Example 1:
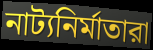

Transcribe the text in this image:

নাট্যনির্মাতারা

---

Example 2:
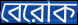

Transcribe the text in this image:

বেরোক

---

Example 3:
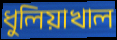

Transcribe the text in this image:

ধুলিয়াখাল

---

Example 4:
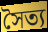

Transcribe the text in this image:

সৈত্য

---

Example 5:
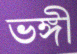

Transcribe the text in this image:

ভঙ্গী